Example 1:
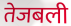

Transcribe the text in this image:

तेजबली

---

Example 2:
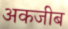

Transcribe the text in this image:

अकजीब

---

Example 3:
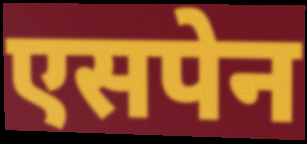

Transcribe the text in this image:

एसपेन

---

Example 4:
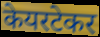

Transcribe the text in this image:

केयरटेकर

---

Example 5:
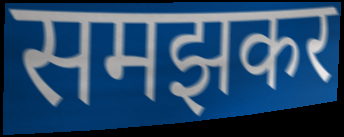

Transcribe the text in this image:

समझकर